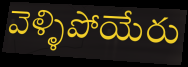
వెళ్ళిపోయేరు